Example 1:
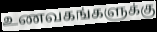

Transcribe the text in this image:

உணவகங்களுக்கு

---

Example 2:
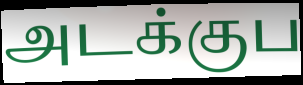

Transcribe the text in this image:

அடக்குப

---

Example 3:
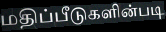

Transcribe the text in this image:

மதிப்பீடுகளின்படி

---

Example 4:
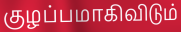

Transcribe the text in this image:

குழப்பமாகிவிடும்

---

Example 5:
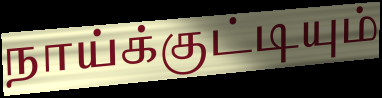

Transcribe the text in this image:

நாய்க்குட்டியும்